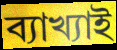
ব্যাখ্যাই